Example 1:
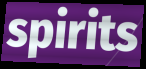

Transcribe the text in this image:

spirits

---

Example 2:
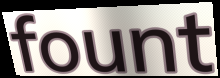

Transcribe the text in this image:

fount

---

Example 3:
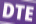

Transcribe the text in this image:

DTE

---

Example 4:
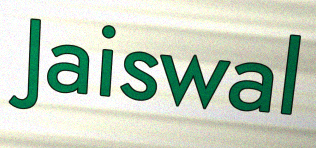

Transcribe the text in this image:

Jaiswal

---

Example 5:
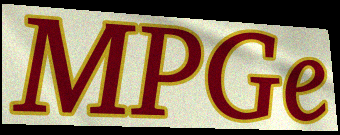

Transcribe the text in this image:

MPGe